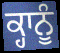
ਕ੍ਹਾਨੂੰ